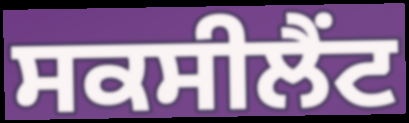
ਸਕਸੀਲੈਂਟ